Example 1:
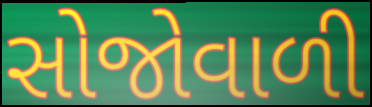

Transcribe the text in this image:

સોજોવાળી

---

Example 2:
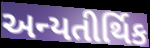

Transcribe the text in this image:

અન્યતીર્થિક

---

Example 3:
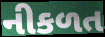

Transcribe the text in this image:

નીકળત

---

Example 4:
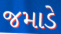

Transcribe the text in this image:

જમાડે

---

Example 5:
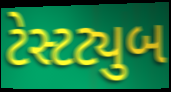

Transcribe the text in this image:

ટેસ્ટટ્યુબ